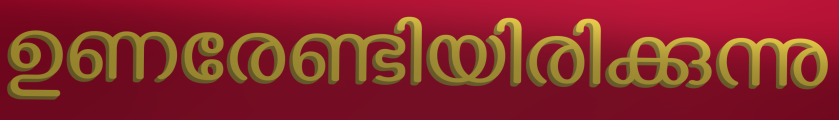
ഉണരേണ്ടിയിരിക്കുന്നു